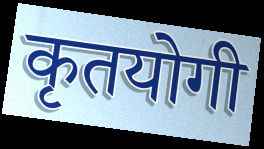
कृतयोगी